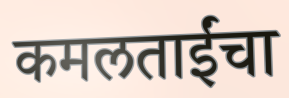
कमलताईंचा